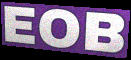
EOB